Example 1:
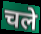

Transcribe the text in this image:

चले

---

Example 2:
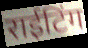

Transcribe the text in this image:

राईटिंग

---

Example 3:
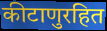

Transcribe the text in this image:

कीटाणुरहित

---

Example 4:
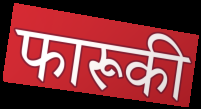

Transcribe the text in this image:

फारूकी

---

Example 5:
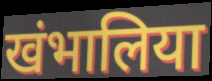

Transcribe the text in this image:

खंभालिया